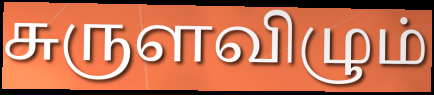
சுருளவிழும்